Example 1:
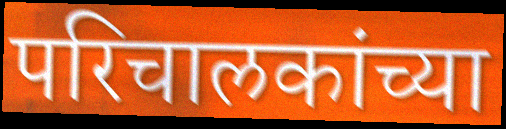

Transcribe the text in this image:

परिचालकांच्या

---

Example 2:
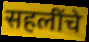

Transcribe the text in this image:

सहलींचे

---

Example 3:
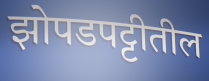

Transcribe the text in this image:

झोपडपट्टीतील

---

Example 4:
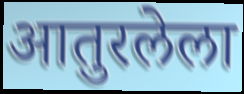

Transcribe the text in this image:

आतुरलेला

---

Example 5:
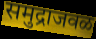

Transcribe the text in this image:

समुद्राजवळ